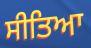
ਸੀਤਿਆ